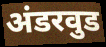
अंडरवुड